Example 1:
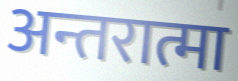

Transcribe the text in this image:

अन्तरात्मा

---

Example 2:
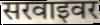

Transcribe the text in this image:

सरवाइवर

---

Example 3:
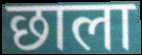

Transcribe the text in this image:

छाला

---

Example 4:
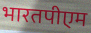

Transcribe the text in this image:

भारतपीएम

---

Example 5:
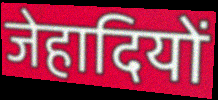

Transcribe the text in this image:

जेहादियों